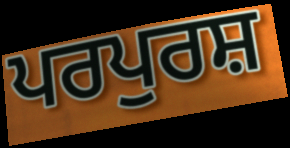
ਪਰਪੁਰਸ਼